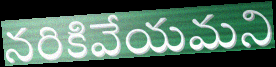
నరికివేయమని